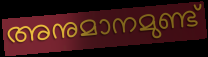
അനുമാനമുണ്ട്